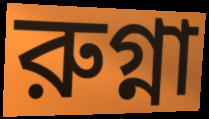
রুগ্না